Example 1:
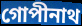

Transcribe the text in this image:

গোপীনাথ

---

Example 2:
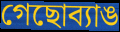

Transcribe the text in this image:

গেছোব্যাঙ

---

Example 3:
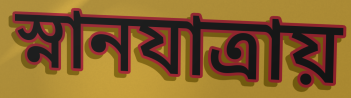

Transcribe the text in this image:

স্নানযাত্রায়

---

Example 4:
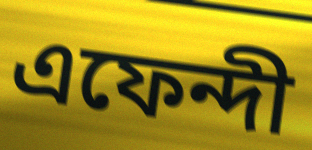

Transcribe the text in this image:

এফেন্দী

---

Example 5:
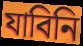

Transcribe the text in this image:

যাবিনি